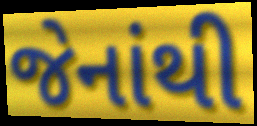
જેનાંથી